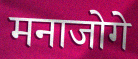
मनाजोगे